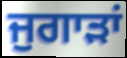
ਜੁਗਾੜਾਂ